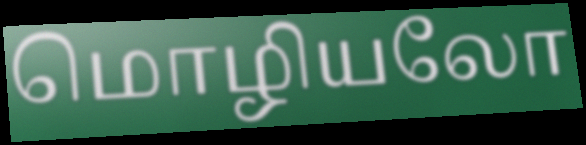
மொழியலோ